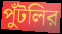
পুঁটলির